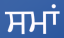
ਸਮਾਂ